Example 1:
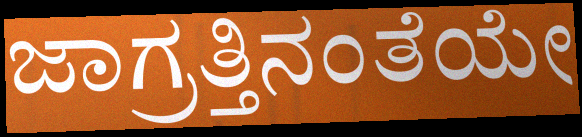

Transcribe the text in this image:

ಜಾಗ್ರತ್ತಿನಂತೆಯೇ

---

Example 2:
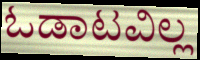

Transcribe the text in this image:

ಓಡಾಟವಿಲ್ಲ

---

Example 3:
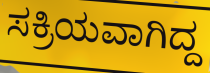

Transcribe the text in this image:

ಸಕ್ರಿಯವಾಗಿದ್ದ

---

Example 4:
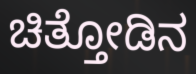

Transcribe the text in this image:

ಚಿತ್ತೋಡಿನ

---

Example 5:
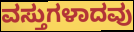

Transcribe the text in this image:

ವಸ್ತುಗಳಾದವು